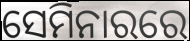
ସେମିନାରରେ